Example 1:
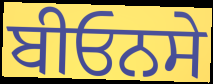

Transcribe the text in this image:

ਬੀਓਨਸੇ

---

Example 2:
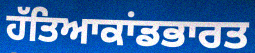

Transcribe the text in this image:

ਹੱਤਿਆਕਾਂਡਭਾਰਤ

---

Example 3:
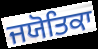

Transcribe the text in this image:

ਜਯੋਤਿਕਾ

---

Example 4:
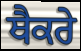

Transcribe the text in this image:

ਥੈਕਰੇ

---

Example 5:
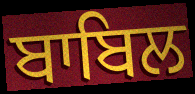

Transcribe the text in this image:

ਬਾਬਿਲ